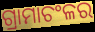
ଗ୍ରାମାଚଂଳର